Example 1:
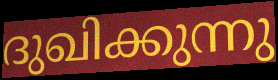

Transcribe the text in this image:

ദുഖിക്കുന്നു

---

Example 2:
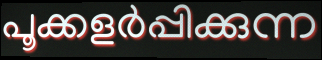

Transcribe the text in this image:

പൂക്കളർപ്പിക്കുന്ന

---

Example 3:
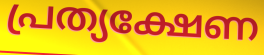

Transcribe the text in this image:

പ്രത്യക്ഷേണ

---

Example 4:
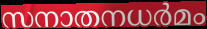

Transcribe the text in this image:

സനാതനധർമം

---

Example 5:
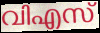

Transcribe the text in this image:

വിഎസ്